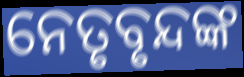
ନେତୃବୃନ୍ଦଙ୍କ